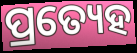
ପ୍ରତ୍ୟେହ